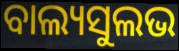
ବାଲ୍ୟସୁଲଭ